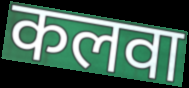
कलवा